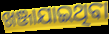
ଖଞ୍ଜାଯାଇଥିବା